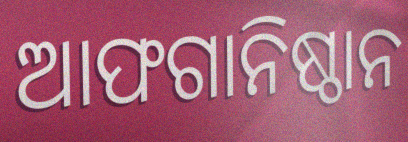
ଆଫଗାନିଷ୍ଠାନ